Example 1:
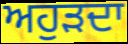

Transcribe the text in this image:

ਅਹੁੜਦਾ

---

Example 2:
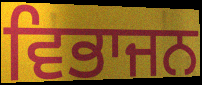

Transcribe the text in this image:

ਵਿਭਾਜਨ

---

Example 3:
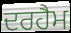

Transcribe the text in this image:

ਦਰਹੈਮ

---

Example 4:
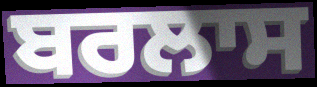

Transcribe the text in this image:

ਬਰਲਾਸ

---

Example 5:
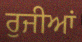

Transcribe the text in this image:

ਰੁਜੀਆਂ